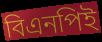
বিএনপিই